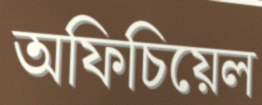
অফিচিয়েল